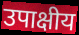
उपाक्षीय